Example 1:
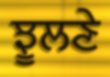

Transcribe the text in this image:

ਝੂਲਣੇ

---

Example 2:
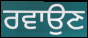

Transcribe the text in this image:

ਰਵਾਉਣ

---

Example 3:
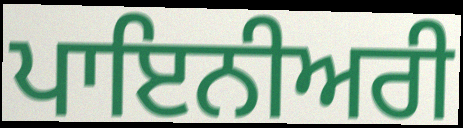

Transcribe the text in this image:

ਪਾਇਨੀਅਰੀ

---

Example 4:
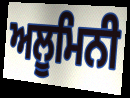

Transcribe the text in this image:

ਅਲੂਮਿਨੀ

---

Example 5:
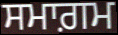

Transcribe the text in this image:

ਸਮਾਗ਼ਮ